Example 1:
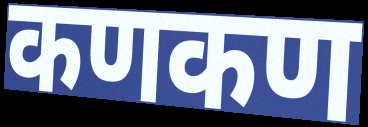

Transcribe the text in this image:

कणकण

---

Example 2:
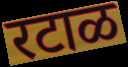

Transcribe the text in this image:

रटाळ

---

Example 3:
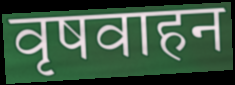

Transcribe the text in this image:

वृषवाहन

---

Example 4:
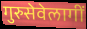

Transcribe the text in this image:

गुरुसेवेलागीं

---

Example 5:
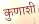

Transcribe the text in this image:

कुणाशी